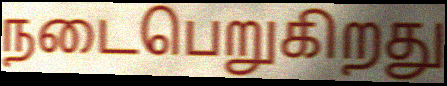
நடைபெறுகிறது